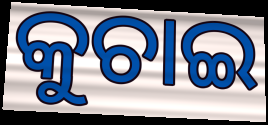
କୁଚାଇ